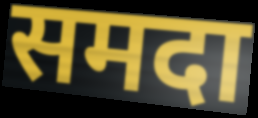
समदा